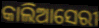
କାଲିଆସେରୀ